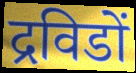
द्रविडों